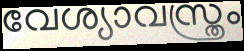
വേശ്യാവസ്ത്രം